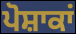
ਪੋਸ਼ਾਕਾਂ